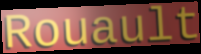
Rouault